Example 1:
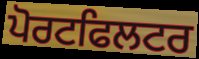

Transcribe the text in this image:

ਪੋਰਟਫਿਲਟਰ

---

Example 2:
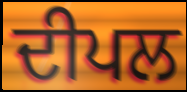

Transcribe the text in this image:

ਦੀਪਲ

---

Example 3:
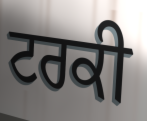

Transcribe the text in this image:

ਟਰਕੀ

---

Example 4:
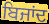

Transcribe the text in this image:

ਬਿਜਾਂਦ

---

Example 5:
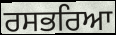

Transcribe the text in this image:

ਰਸਭਰਿਆ